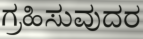
ಗ್ರಹಿಸುವುದರ